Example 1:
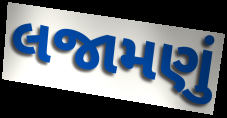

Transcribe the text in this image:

લજામણું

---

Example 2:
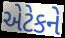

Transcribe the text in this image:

એટેકને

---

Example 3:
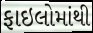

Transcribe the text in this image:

ફાઇલોમાંથી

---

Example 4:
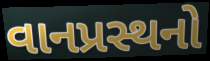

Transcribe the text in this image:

વાનપ્રસ્થનો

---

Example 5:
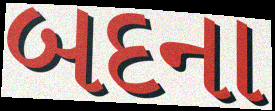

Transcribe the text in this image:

બદના